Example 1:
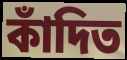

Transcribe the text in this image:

কাঁদিত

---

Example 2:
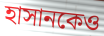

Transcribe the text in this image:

হাসানকেও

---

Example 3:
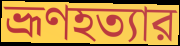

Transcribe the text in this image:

ভ্রূণহত্যার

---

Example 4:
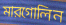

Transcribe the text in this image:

মারগোলিন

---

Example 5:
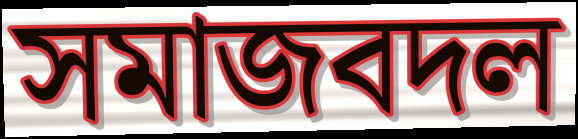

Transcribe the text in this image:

সমাজবদল